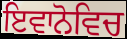
ਇਵਾਨੋਵਿਚ